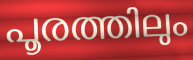
പൂരത്തിലും